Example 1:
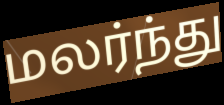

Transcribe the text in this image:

மலர்ந்து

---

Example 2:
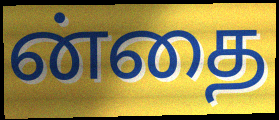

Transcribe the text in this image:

ன்தை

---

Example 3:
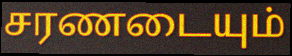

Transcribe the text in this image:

சரணடையும்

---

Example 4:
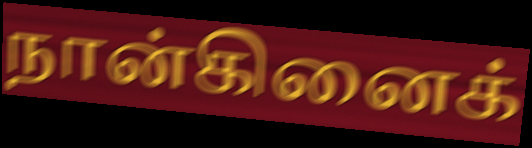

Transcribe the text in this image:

நான்கினைக்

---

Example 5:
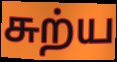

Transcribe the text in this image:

சுற்ய